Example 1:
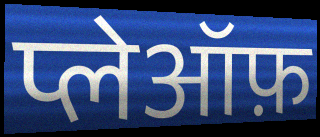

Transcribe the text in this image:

प्लेऑफ़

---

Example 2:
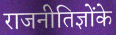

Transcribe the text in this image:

राजनीतिज्ञोंके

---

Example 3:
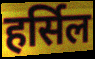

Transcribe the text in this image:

हर्सिल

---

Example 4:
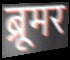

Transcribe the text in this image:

ब्रूमर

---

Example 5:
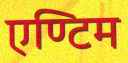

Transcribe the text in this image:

एण्टिम